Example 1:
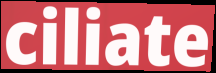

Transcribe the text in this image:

ciliate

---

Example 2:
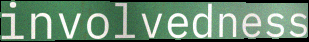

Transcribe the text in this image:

involvedness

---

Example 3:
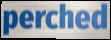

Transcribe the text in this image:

perched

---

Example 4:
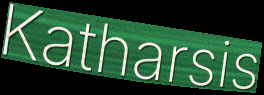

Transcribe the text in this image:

Katharsis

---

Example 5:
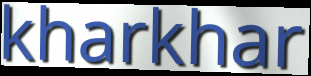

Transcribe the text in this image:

kharkhar